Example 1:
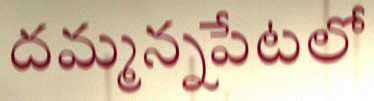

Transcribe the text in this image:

దమ్మన్నపేటలో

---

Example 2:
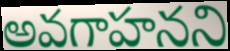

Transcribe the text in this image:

అవగాహనని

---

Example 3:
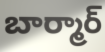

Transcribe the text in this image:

బార్మార్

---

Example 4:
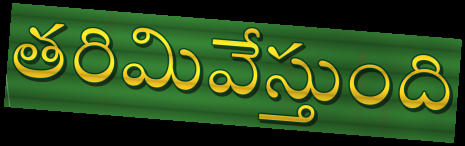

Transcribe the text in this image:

తరిమివేస్తుంది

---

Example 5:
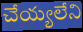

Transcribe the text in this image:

చేయ్యలేని